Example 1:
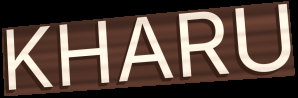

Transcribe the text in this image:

KHARU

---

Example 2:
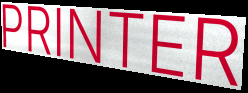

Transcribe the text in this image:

PRINTER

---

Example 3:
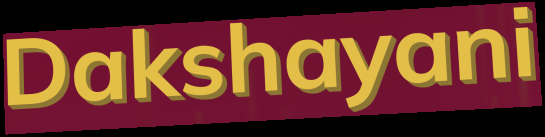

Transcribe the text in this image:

Dakshayani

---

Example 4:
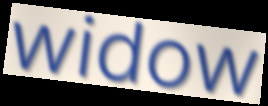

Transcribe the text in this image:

widow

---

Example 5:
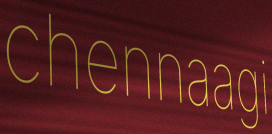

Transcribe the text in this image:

chennaagi